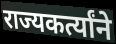
राज्यकर्त्यांने